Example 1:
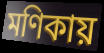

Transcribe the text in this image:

মণিকায়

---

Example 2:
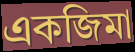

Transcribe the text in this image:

একজিমা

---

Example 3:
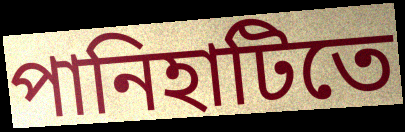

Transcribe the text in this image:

পানিহাটিতে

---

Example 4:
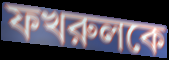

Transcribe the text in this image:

ফখরুলকে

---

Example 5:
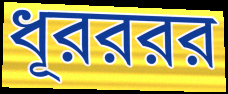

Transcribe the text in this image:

ধূরররর